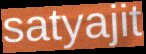
satyajit